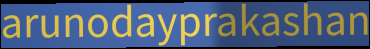
arunodayprakashan